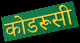
कोडरूसी